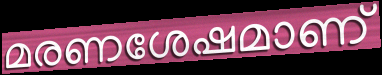
മരണശേഷമാണ്